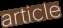
article